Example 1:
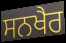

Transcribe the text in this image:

ਸਨਖੈਰ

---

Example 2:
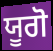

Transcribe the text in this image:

ਯੂਗੋ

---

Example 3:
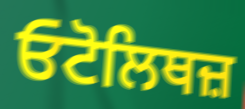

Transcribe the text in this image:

ਓਟੋਲਿਥਜ਼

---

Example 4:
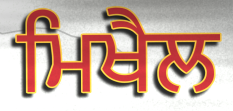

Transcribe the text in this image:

ਮਿਖੈਲ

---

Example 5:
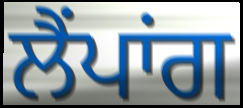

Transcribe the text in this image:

ਲੈਂਪਾਂਗ